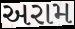
અરામ